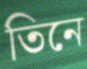
তিনে